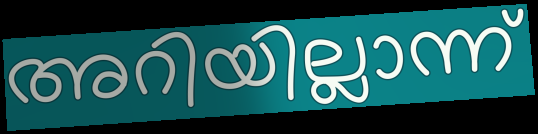
അറിയില്ലാന്ന്